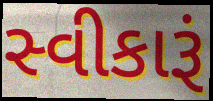
સ્વીકારૂં